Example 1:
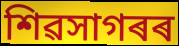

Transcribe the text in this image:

শিৱসাগৰৰ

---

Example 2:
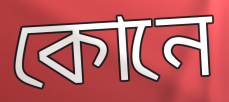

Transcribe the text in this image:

কোনে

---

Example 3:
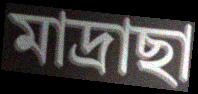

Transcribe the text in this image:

মাদ্ৰাছা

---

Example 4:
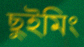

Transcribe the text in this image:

ছুইমিং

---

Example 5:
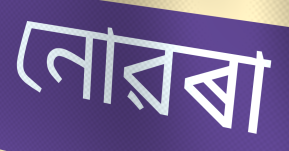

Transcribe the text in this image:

নোৱৰা